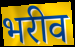
भरीव